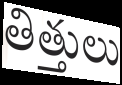
తిత్తులు